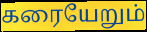
கரையேறும்